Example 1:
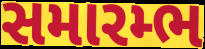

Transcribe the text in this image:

સમારમ્ભ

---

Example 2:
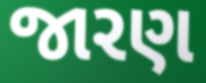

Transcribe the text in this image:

જારણ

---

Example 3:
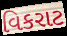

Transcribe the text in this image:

વિકરાટ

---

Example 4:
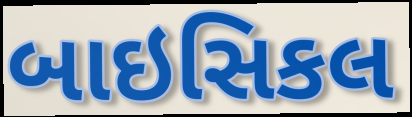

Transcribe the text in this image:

બાઇસિકલ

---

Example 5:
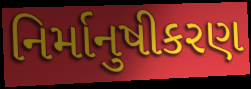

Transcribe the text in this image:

નિર્માનુષીકરણ